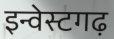
इन्वेस्टगढ़